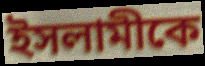
ইসলামীকে